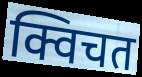
क्विचत